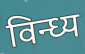
विन्ध्य